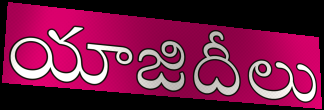
యాజిదీలు